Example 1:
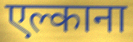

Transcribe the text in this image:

एल्काना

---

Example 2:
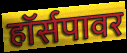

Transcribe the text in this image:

हॉर्सपावर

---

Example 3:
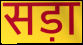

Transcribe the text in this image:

सड़ा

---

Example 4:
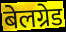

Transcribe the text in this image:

बेलग्रेड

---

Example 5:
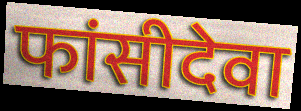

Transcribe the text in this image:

फांसीदेवा